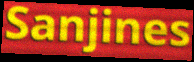
Sanjines